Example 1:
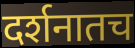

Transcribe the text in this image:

दर्शनातच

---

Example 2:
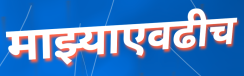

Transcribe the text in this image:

माझ्याएवढीच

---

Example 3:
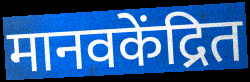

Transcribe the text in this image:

मानवकेंद्रित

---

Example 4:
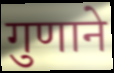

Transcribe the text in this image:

गुणाने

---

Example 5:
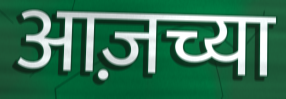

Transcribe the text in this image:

आज़च्या